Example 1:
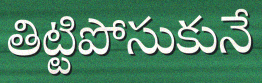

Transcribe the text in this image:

తిట్టిపోసుకునే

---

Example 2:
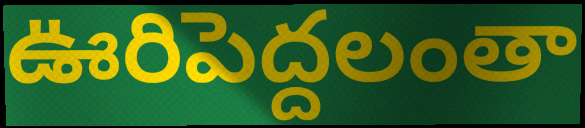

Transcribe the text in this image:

ఊరిపెద్దలంతా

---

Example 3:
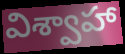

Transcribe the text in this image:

విశ్వాహా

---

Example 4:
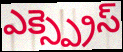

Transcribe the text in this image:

ఎక్స్ప్రెస్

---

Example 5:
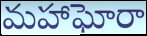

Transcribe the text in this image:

మహాఘోరా